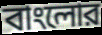
বাংলোর